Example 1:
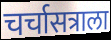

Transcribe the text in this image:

चर्चासत्राला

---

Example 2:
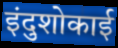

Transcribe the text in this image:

इंदुशोकाई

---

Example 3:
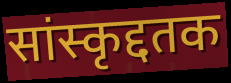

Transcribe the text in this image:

सांस्कृद्दतक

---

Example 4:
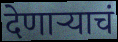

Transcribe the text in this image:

देणाऱ्याचं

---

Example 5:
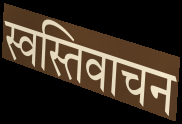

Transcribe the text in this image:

स्वस्तिवाचन